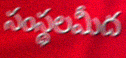
సంస్థలమీద